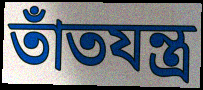
তাঁতযন্ত্র